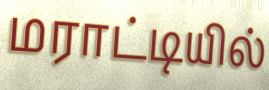
மராட்டியில்